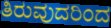
ತಿರುವುದರಿಂದ